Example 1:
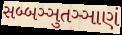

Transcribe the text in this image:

સબ્બઞ્ઞુતઞ્ઞાણં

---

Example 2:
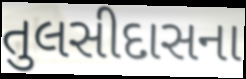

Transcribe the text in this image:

તુલસીદાસના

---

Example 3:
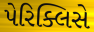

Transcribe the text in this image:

પેરિક્લિસે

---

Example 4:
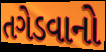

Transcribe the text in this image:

તગેડવાનો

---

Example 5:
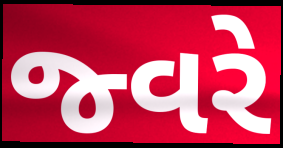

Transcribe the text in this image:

જ્વરે